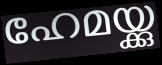
ഹേമയ്ക്കു